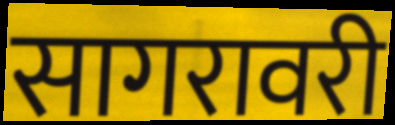
सागरावरी